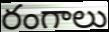
రంగాలు